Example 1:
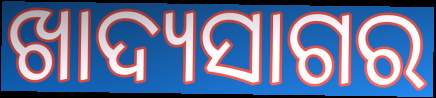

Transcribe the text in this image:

ଖାଦ୍ୟସାଗର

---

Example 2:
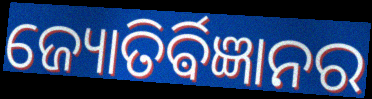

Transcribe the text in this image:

ଜ୍ୟୋତିର୍ଵିଜ୍ଞାନର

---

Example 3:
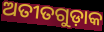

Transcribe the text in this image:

ଅତୀତଗୁଡ଼ାକ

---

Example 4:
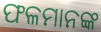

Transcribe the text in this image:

ଫଳମାନଙ୍କ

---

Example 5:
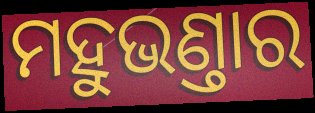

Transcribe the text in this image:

ମହୁଭଣ୍ତାର